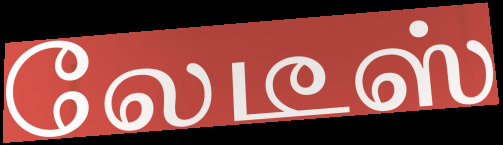
லேடீஸ்